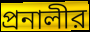
প্রনালীর